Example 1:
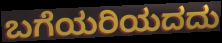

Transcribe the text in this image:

ಬಗೆಯರಿಯದದು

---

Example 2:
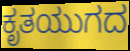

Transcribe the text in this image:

ಕೃತಯುಗದ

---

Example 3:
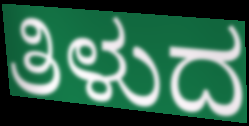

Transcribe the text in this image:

ತಿಳುದ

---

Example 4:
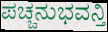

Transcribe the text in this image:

ಪಚ್ಚನುಭವನ್ತಿ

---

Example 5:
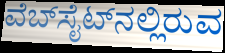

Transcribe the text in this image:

ವೆಬ್‌ಸೈಟ್‌ನಲ್ಲಿರುವ